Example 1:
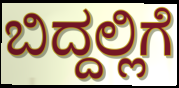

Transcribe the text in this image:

ಬಿದ್ದಲ್ಲಿಗೆ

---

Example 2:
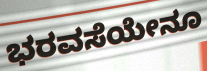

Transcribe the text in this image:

ಭರವಸೆಯೇನೂ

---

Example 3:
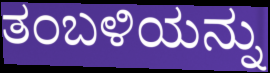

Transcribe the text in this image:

ತಂಬಳಿಯನ್ನು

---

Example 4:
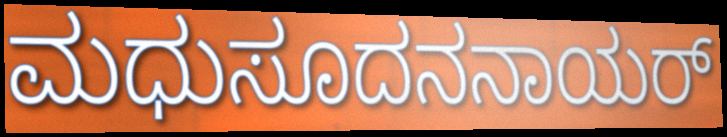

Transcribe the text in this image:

ಮಧುಸೂದನನಾಯರ್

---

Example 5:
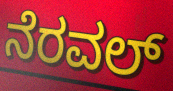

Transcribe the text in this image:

ನೆರವಲ್